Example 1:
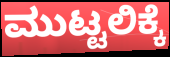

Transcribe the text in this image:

ಮುಟ್ಟಲಿಕ್ಕೆ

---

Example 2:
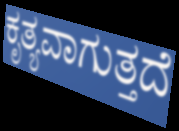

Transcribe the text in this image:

ಕೃತ್ಯವಾಗುತ್ತದೆ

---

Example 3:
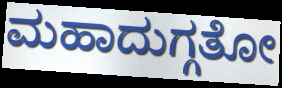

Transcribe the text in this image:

ಮಹಾದುಗ್ಗತೋ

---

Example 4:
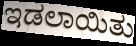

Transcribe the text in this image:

ಇಡಲಾಯಿತು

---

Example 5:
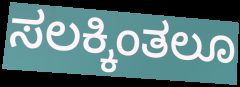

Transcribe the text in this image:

ಸಲಕ್ಕಿಂತಲೂ